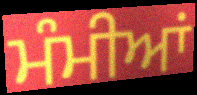
ਮੰਮੀਆਂ